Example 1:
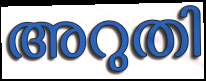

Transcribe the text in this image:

അറുതി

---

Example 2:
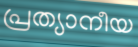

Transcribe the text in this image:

പ്രത്യാനീയ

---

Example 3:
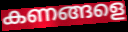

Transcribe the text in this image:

കണങ്ങളെ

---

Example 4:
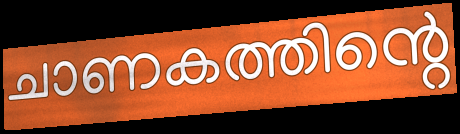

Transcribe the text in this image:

ചാണകത്തിന്റെ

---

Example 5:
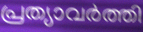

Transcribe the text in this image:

പ്രത്യാവർത്തി